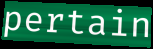
pertain